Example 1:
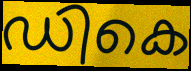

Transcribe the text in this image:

ഡികെ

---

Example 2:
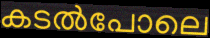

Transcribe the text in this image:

കടൽപോലെ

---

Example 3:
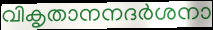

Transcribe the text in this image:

വികൃതാനനദർശനാ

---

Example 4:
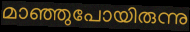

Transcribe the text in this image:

മാഞ്ഞുപോയിരുന്നു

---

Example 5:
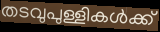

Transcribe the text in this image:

തടവുപുള്ളികൾക്ക്